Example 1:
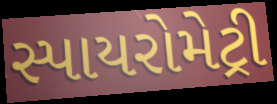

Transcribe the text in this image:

સ્પાયરોમેટ્રી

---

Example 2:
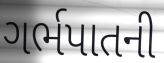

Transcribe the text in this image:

ગર્ભપાતની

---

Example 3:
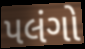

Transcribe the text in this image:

પલંગો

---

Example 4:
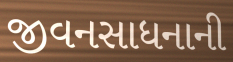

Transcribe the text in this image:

જીવનસાધનાની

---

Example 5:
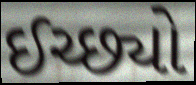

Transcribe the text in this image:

ઈચ્છ્યો